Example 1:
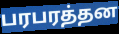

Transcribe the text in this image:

பரபரத்தன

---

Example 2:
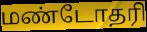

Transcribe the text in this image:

மண்டோதரி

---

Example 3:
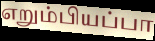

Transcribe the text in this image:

எறும்பியப்பா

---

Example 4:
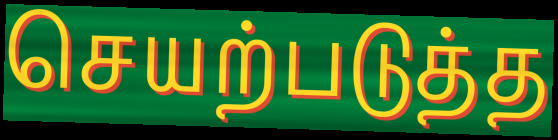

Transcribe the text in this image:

செயற்படுத்த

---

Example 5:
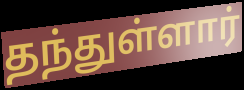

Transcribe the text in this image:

தந்துள்ளார்